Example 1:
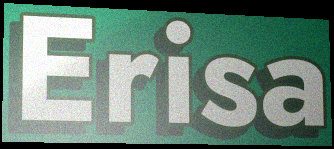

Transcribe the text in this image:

Erisa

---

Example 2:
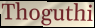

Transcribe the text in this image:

Thoguthi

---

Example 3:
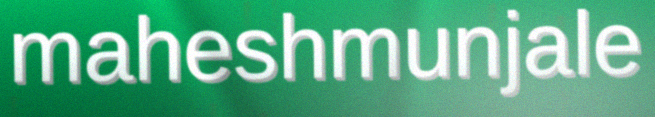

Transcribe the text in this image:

maheshmunjale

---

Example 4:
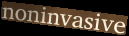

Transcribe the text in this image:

noninvasive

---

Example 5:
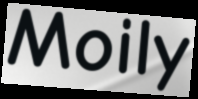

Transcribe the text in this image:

Moily